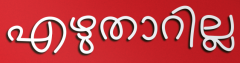
എഴുതാറില്ല